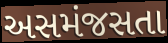
અસમંજસતા